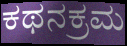
ಕಥನಕ್ರಮ